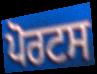
ਪੋਰਟਸ